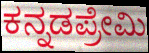
ಕನ್ನಡಪ್ರೇಮಿ